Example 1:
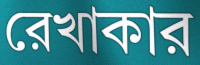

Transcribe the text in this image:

রেখাকার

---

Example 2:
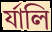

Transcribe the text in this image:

র্যালি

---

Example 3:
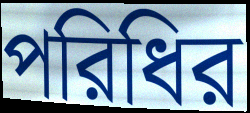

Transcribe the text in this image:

পরিধির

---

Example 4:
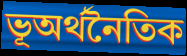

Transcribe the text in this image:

ভূঅর্থনৈতিক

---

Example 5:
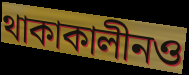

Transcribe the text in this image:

থাকাকালীনও